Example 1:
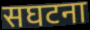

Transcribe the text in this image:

सघटना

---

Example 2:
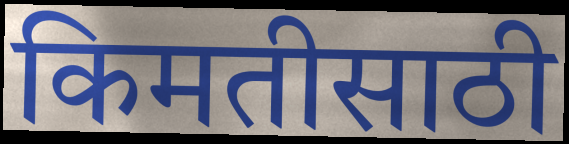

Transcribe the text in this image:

किमतीसाठी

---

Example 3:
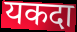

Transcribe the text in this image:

यकदा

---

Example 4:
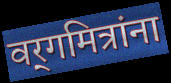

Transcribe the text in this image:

वर्गमित्रांना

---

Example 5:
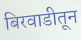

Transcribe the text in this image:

बिरवाडीतून